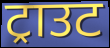
ट्राउट